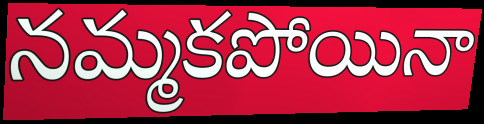
నమ్మకపోయినా